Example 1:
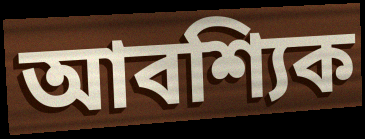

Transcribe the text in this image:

আবশ্যিক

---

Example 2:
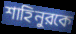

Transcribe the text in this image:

শাহিনুরকে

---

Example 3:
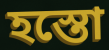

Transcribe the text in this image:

হস্তো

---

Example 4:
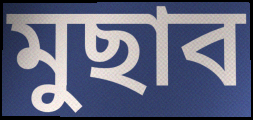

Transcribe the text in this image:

মুছাব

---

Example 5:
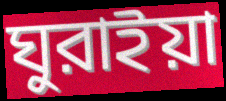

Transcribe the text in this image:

ঘুরাইয়া